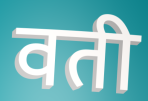
वती